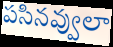
పసినవ్వులా